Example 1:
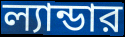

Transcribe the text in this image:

ল্যান্ডার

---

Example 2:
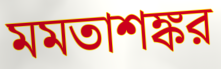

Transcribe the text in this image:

মমতাশঙ্কর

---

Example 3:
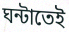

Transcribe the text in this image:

ঘন্টাতেই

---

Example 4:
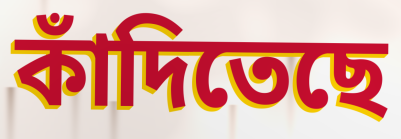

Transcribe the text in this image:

কাঁদিতেছে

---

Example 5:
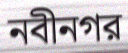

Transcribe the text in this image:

নবীনগর